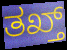
ತಖ್ತ್